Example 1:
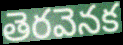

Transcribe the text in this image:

తెరవెనక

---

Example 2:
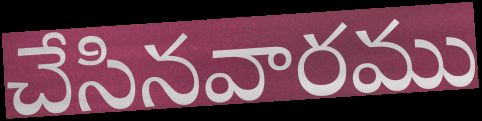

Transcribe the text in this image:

చేసినవారము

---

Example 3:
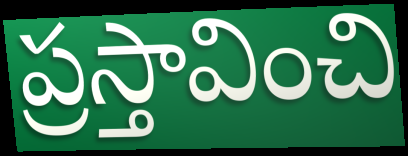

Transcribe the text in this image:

ప్రస్తావించి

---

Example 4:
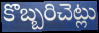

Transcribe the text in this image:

కొబ్బరిచెట్లు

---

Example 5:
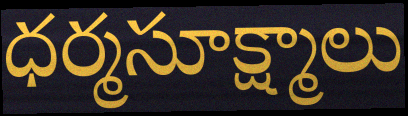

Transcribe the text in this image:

ధర్మసూక్ష్మాలు